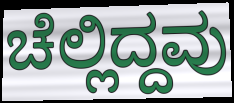
ಚೆಲ್ಲಿದ್ದವು